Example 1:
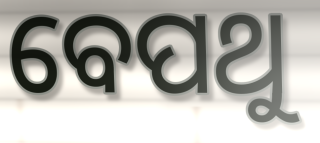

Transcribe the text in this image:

ବେପଥୁ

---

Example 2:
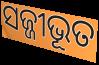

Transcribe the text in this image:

ସଜ୍ଜୀଭୂତ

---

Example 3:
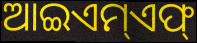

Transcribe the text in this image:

ଆଇଏମ୍ଏଫ୍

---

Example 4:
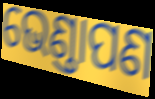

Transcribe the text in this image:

ଭେଣ୍ଡାପଣ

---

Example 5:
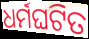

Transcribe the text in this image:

ଧର୍ମଘଟିତ